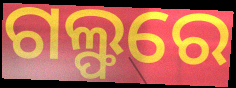
ଗଲ୍ଫରେ